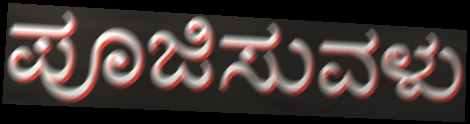
ಪೂಜಿಸುವಳು